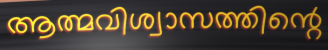
ആത്മവിശ്വാസത്തിന്റെ